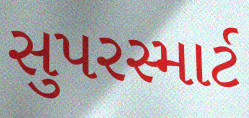
સુપરસ્માર્ટ